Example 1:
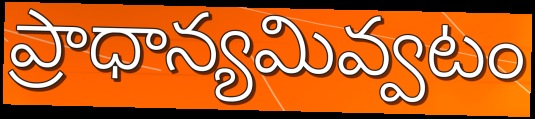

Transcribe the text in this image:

ప్రాధాన్యమివ్వటం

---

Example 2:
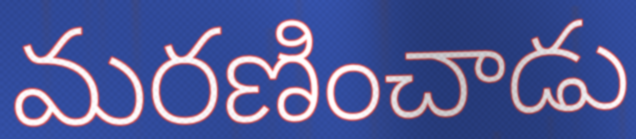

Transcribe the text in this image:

మరణించాడు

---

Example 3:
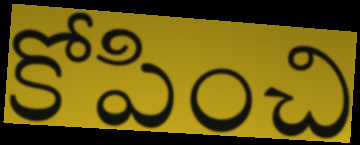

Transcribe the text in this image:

కోపించి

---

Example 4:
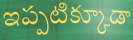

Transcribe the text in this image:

ఇప్పటిక్కూడా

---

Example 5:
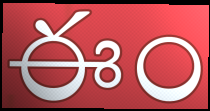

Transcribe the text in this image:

ఈం